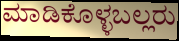
ಮಾಡಿಕೊಳ್ಳಬಲ್ಲರು